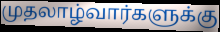
முதலாழ்வார்களுக்கு